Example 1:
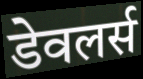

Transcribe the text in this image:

डेवलर्स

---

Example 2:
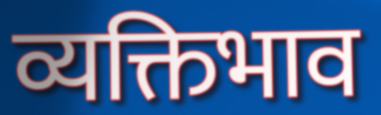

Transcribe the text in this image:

व्यक्तिभाव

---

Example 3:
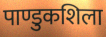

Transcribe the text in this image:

पाण्डुकशिला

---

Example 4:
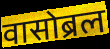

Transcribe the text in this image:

वासोब्रल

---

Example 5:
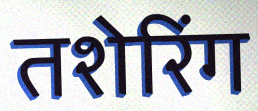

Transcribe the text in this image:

तशेरिंग